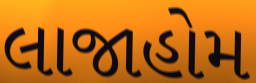
લાજાહોમ